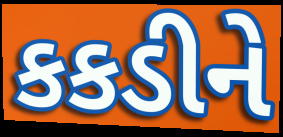
કકડીને